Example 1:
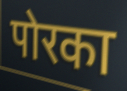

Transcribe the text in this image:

पोरका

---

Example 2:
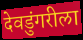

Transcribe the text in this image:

देवडुंगरीला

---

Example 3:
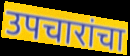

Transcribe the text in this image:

उपचारांचा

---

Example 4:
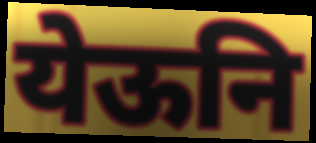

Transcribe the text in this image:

येऊनि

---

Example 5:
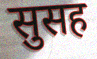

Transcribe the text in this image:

सुसह